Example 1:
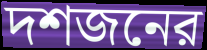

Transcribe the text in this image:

দশজনের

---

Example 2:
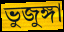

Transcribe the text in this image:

ভুজুঙ্গা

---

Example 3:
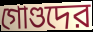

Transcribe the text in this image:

গোণ্ডদের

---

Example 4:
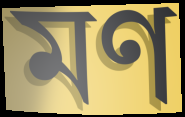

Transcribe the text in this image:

মণ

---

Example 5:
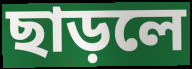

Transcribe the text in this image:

ছাড়লে